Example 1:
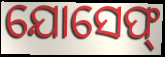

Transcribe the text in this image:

ଯୋସେଫ୍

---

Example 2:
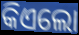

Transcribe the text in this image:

କିଏଲୋ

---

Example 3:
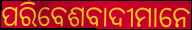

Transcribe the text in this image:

ପରିବେଶବାଦୀମାନେ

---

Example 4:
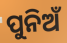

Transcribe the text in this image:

ପୁନିଅଁ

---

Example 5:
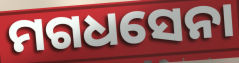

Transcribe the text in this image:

ମଗଧସେନା